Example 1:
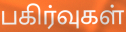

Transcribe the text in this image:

பகிர்வுகள்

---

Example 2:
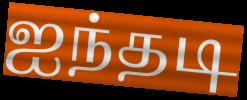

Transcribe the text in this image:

ஐந்தடி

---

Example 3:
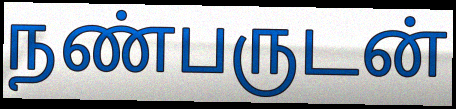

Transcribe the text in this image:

நண்பருடன்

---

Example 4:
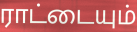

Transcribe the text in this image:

ராட்டையும்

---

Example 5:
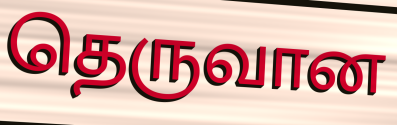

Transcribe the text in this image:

தெருவான